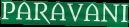
PARAVANI